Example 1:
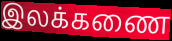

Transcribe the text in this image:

இலக்கணை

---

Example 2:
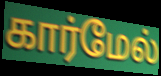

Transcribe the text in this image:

கார்மேல்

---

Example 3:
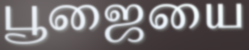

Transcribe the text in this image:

பூஜையை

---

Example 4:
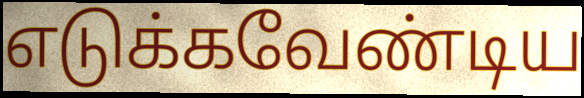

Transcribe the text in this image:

எடுக்கவேண்டிய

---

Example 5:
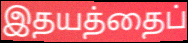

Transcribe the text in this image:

இதயத்தைப்